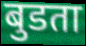
बुडता